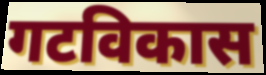
गटविकास